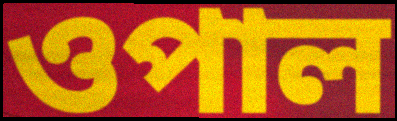
ওপাল